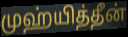
முஹ்யித்தீன்